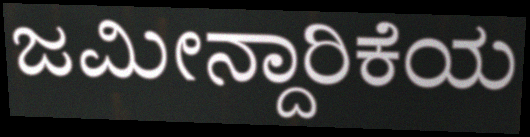
ಜಮೀನ್ದಾರಿಕೆಯ